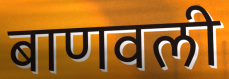
बाणवली